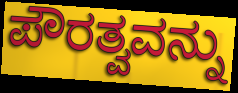
ಪೌರತ್ವವನ್ನು